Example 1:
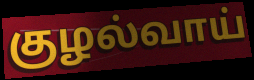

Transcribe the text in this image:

குழல்வாய்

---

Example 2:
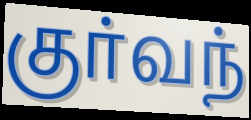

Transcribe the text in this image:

குர்வந்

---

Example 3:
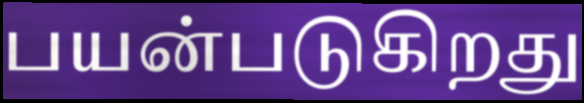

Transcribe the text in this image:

பயன்படுகிறது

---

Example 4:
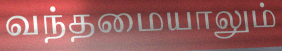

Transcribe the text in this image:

வந்தமையாலும்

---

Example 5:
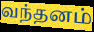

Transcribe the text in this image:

வந்தனம்